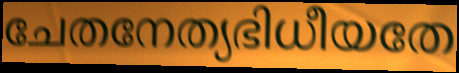
ചേതനേത്യഭിധീയതേ